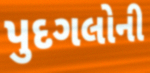
પુદગલોની